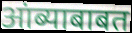
आंब्याबाबत